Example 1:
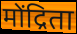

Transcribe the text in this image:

मोंद्रिता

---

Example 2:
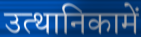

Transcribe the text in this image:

उत्थानिकामें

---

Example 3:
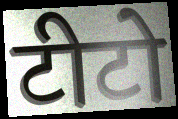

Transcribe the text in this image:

टीटो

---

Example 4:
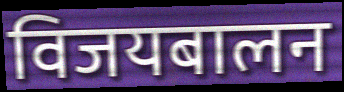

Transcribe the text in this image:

विजयबालन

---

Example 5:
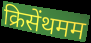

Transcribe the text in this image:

क्रिसेंथमम